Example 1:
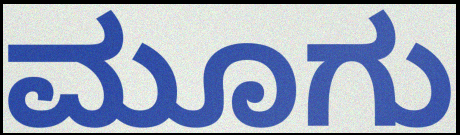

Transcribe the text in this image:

ಮೂಗು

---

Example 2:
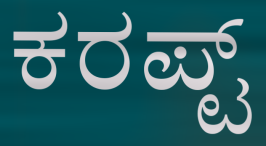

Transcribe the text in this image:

ಕರಪ್ಟ್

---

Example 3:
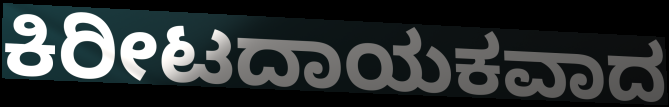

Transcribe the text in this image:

ಕಿರೀಟದಾಯಕವಾದ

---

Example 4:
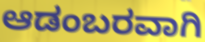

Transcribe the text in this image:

ಆಡಂಬರವಾಗಿ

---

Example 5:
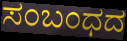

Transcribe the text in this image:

ಸಂಬಂಧದ